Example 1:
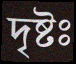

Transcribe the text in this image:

দৃষ্টঃ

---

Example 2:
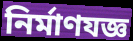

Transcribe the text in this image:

নির্মাণযজ্ঞ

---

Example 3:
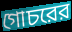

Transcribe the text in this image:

গোচরের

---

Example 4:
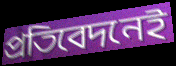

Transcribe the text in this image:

প্রতিবেদনেই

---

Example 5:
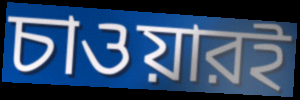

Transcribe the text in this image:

চাওয়ারই